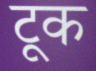
टूक